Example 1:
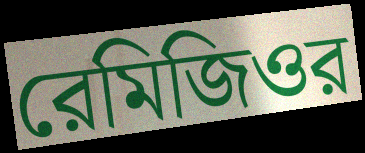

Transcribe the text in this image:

রেমিজিওর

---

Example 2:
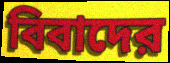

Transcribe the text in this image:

বিবাদের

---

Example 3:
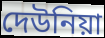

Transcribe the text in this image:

দেউনিয়া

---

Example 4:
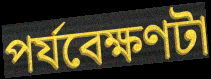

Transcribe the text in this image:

পর্যবেক্ষণটা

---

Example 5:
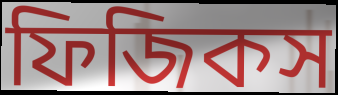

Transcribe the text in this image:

ফিজিকস